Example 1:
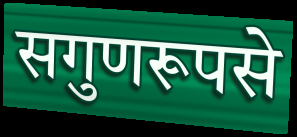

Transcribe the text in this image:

सगुणरूपसे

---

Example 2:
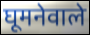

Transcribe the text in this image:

घूमनेवाले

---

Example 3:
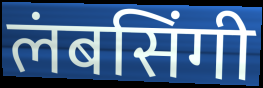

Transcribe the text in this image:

लंबसिंगी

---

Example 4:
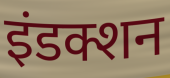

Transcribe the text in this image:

इंडक्शन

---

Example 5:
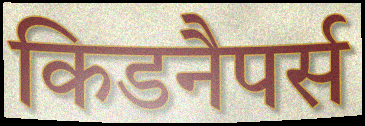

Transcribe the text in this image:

किडनैपर्स